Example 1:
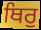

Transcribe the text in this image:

ਥਿਰੁ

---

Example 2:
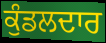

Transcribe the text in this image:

ਕੁੰਡਲਦਾਰ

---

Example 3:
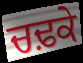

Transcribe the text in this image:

ਚਢ਼ਕੇ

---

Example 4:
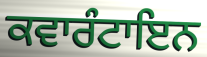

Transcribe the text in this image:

ਕਵਾਰੰਟਾਇਨ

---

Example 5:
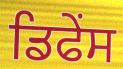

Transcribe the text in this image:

ਡਿਫੇਂਸ